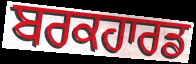
ਬਰਕਹਾਰਡ